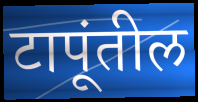
टापूंतील